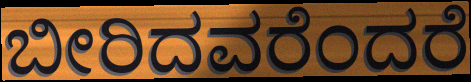
ಬೀರಿದವರೆಂದರೆ